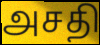
அசதி